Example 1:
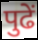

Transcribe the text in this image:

पुढें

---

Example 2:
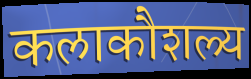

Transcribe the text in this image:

कलाकौशल्य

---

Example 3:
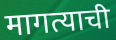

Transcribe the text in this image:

मागत्याची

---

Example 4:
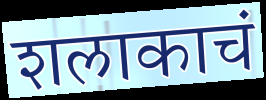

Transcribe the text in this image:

शलाकाचं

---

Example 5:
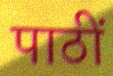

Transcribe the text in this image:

पाठीं